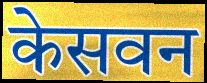
केसवन